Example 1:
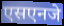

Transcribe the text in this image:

एसएनजे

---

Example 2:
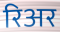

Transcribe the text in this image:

रिअर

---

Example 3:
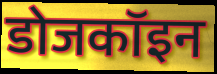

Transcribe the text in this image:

डोजकॉइन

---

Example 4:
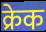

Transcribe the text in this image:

क्रेक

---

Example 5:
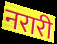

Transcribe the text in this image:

नरारी